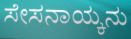
ಸೇಸನಾಯ್ಕನು